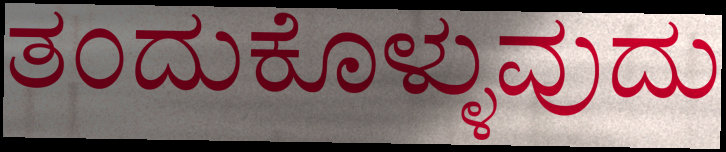
ತಂದುಕೊಳ್ಳುವುದು